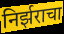
निर्झराचा